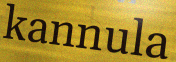
kannula